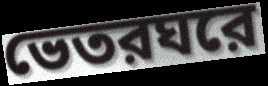
ভেতরঘরে